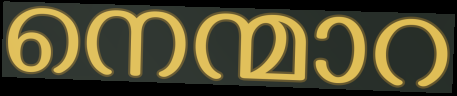
നെന്മാറ